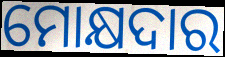
ମୋକ୍ଷଦାର